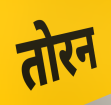
तोरन